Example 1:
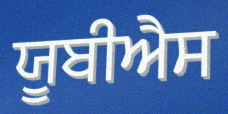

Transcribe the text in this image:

ਯੂਬੀਐਸ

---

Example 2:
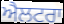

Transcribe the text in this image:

ਐਲਟਰਾ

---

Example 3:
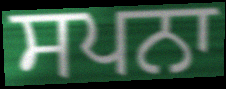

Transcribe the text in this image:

ਸਪਨਾ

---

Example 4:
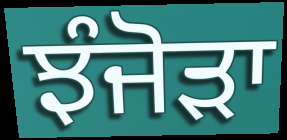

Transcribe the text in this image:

ਝੰਜੋੜਾ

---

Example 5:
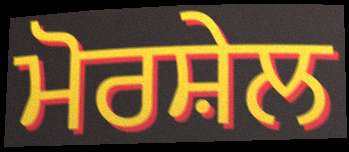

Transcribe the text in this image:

ਮੋਰਸ਼ੇਲ